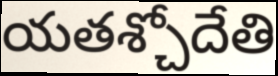
యతశ్చోదేతి